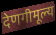
देणगीमूल्य